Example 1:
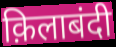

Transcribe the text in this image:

क़िलाबंदी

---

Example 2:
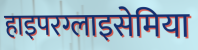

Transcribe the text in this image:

हाइपरग्लाइसेमिया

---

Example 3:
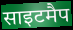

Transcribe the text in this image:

साइटमैप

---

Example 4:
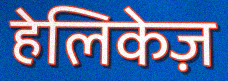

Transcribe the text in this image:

हेलिकेज़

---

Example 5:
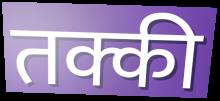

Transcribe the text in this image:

तक्की